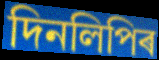
দিনলিপিৰ